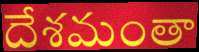
దేశమంతా